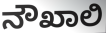
ನೌಖಾಲಿ